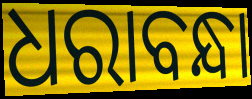
ଧରାବନ୍ଧା